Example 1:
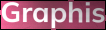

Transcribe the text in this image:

Graphis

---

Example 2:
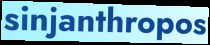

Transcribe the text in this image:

sinjanthropos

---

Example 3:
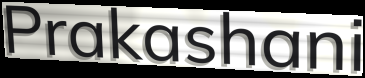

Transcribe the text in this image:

Prakashani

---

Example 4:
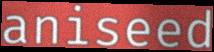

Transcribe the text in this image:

aniseed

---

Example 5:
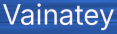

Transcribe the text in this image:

Vainatey